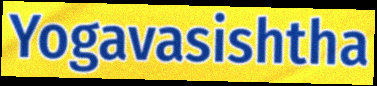
Yogavasishtha